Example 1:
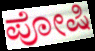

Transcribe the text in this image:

ಪೋಷಿ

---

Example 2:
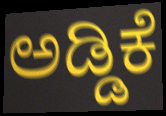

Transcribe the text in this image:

ಅಡ್ಡಿಕೆ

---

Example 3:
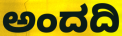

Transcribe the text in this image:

ಅಂದದಿ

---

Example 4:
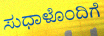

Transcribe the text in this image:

ಸುಧಾಳೊಂದಿಗೆ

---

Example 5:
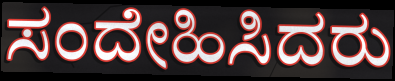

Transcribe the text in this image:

ಸಂದೇಹಿಸಿದರು